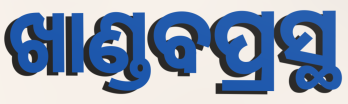
ଖାଣ୍ଡବପ୍ରସ୍ଥ